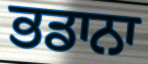
ਭਡਾਨਾ